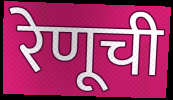
रेणूची